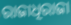
ରାଜାଧିରାଜା